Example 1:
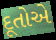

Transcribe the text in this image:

દૂતોએ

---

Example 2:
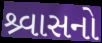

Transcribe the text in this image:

શ્ર્વાસનો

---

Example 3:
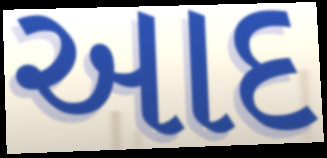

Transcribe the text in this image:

આદ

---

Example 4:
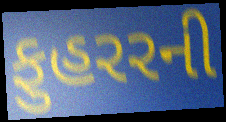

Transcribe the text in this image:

ફુહરરની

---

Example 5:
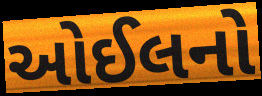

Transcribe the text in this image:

ઓઈલનો